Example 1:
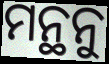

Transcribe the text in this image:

ମନ୍ଥନୁ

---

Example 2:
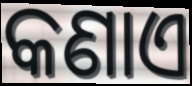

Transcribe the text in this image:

କଣାଏ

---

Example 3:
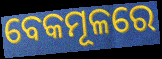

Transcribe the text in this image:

ବେକମୂଳରେ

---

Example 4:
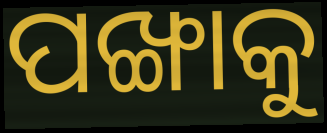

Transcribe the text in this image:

ପଙ୍ଖାକୁ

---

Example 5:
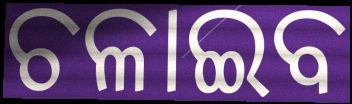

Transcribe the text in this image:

ଚଳାଇବ